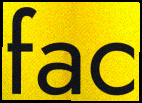
fac